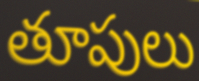
తూపులు